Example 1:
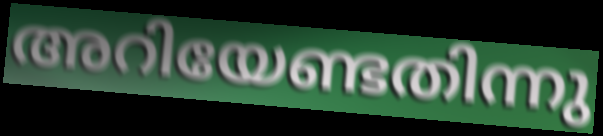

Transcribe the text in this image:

അറിയേണ്ടതിന്നു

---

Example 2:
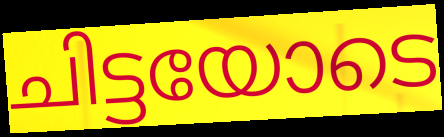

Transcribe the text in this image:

ചിട്ടയോടെ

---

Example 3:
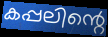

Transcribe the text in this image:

കപ്പലിന്റെ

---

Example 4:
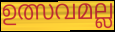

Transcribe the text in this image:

ഉത്സവമല്ല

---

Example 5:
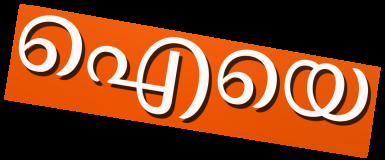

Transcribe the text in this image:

ഐയെ